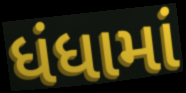
ધંધામાં